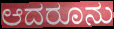
ಆದರೂನು